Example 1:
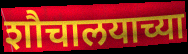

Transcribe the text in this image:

शौचालयाच्या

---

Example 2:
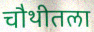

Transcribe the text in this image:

चौथीतला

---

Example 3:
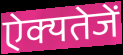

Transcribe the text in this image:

ऐक्यतेजें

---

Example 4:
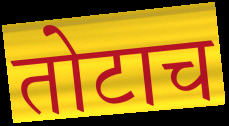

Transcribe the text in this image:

तोटाच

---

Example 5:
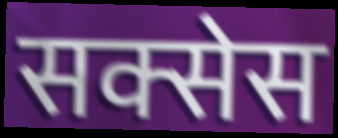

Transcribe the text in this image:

सक्सेस